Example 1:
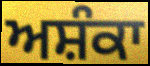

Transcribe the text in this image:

ਅਸ਼ੰਕਾ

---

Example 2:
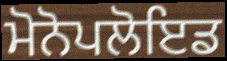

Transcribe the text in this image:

ਮੋਨੋਪਲੋਇਡ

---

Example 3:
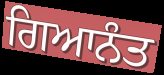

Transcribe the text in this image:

ਗਿਆਨੰਤ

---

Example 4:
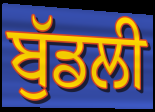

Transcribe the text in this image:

ਬੁੱਡਲੀ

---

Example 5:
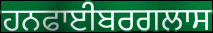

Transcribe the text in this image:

ਹਨਫਾਈਬਰਗਲਾਸ